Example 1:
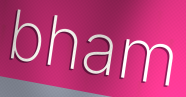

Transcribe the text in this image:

bham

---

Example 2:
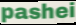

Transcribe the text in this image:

pashei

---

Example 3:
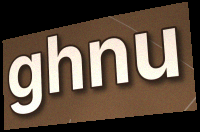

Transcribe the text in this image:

ghnu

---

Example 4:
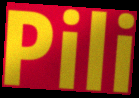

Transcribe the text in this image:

Pili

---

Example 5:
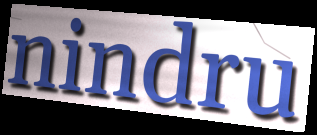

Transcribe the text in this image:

nindru